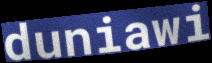
duniawi